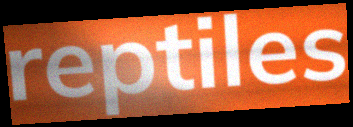
reptiles